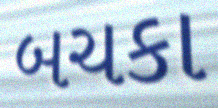
બચકા